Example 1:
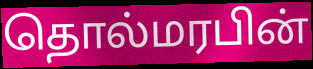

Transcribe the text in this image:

தொல்மரபின்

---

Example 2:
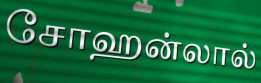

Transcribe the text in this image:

சோஹன்லால்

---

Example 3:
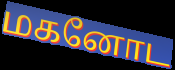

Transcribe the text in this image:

மகனோட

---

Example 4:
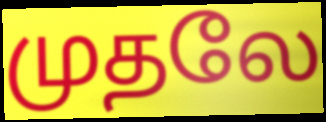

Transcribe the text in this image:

முதலே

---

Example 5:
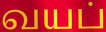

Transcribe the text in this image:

வயப்